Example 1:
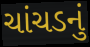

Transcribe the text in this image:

ચાંચડનું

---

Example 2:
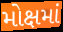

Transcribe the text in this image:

મોક્ષમાં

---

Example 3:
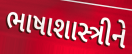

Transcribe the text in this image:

ભાષાશાસ્ત્રીને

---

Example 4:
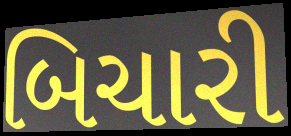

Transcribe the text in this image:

બિચારી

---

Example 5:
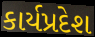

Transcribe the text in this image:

કાર્યપ્રદેશ